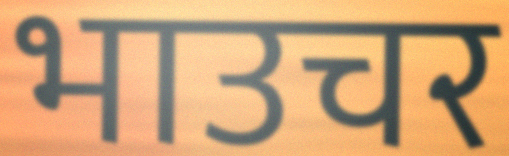
भाउचर